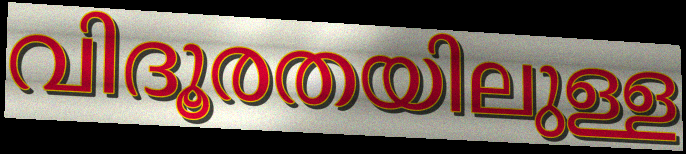
വിദൂരതയിലുള്ള